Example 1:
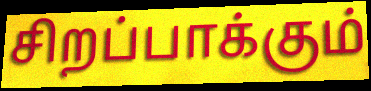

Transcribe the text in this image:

சிறப்பாக்கும்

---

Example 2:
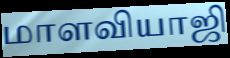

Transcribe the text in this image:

மாளவியாஜி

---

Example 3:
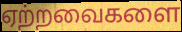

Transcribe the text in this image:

ஏற்றவைகளை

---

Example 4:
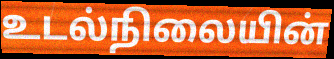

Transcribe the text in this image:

உடல்நிலையின்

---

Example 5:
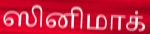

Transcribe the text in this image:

ஸினிமாக்